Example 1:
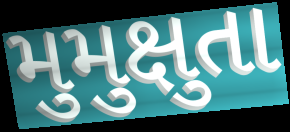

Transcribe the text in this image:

મુમુક્ષુતા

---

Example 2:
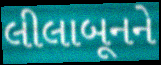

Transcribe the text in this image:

લીલાબૂનને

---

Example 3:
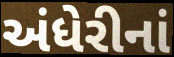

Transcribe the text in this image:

અંધેરીનાં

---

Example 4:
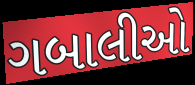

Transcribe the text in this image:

ગબાલીઓ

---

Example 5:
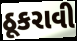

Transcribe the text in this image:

ઠૂકરાવી